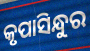
କୃପାସିନ୍ଧୁର